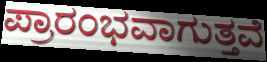
ಪ್ರಾರಂಭವಾಗುತ್ತವೆ